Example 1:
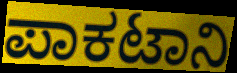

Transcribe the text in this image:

ಪಾಕಟಾನಿ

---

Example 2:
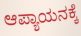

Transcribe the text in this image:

ಆಪ್ಯಾಯನಕ್ಕೆ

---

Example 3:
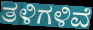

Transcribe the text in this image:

ತಳಿಗಳಿವೆ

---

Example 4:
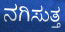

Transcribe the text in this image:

ನಗಿಸುತ್ತ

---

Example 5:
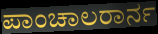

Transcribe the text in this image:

ಪಾಂಚಾಲರಾರ್ನ